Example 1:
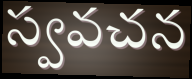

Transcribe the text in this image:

స్వవచన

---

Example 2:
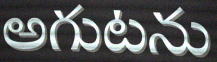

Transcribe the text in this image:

అగుటను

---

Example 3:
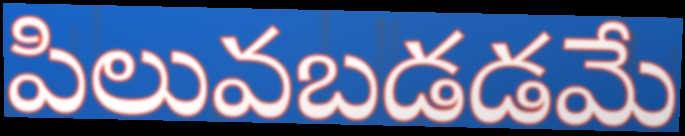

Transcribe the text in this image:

పిలువబడడమే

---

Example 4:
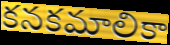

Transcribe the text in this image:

కనకమాలికా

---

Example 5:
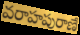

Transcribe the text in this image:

వరాహపురాణే